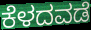
ಕೆಳದವಡೆ